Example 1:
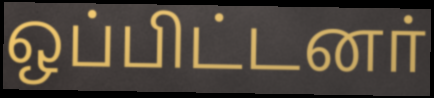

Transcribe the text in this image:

ஒப்பிட்டனர்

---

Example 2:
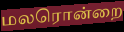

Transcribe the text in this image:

மலரொன்றை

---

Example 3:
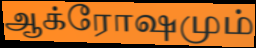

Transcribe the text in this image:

ஆக்ரோஷமும்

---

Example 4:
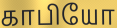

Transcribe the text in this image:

காபியோ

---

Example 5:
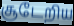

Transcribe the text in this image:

சூடேறிய